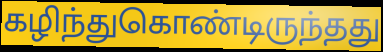
கழிந்துகொண்டிருந்தது